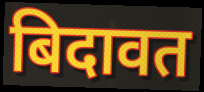
बिदावत